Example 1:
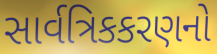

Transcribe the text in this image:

સાર્વત્રિકકરણનો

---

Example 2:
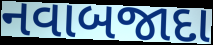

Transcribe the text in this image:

નવાબજાદા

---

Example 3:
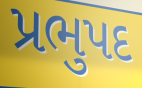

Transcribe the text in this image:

પ્રભુપદ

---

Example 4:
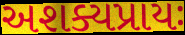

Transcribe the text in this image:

અશક્યપ્રાયઃ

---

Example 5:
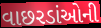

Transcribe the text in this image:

વાછરડાંઓની